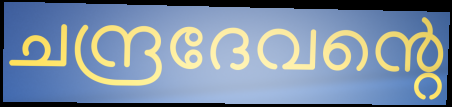
ചന്ദ്രദേവന്റെ